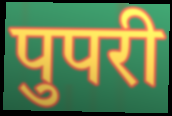
पुपरी